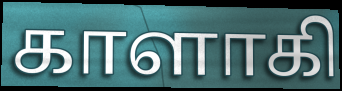
காளாகி